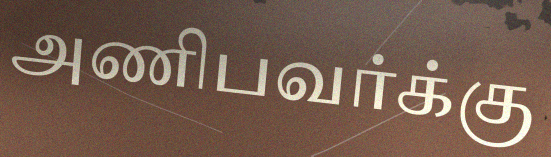
அணிபவர்க்கு